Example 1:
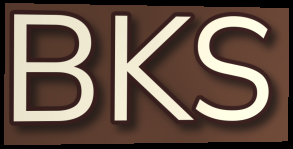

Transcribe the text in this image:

BKS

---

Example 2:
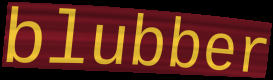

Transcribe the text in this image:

blubber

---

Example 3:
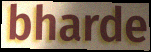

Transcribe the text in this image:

bharde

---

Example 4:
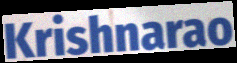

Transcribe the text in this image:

Krishnarao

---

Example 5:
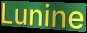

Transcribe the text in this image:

Lunine